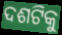
ଦଶଟିକୁ